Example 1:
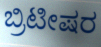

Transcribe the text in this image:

ಬ್ರಿಟೀಷರ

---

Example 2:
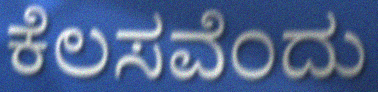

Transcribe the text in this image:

ಕೆಲಸವೆಂದು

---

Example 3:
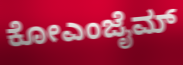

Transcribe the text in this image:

ಕೋಎಂಜೈಮ್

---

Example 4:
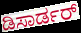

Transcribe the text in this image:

ಡಿಸಾರ್ಡರ್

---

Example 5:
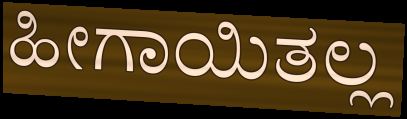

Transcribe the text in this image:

ಹೀಗಾಯಿತಲ್ಲ